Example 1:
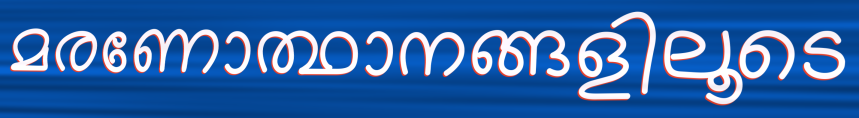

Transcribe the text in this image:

മരണോത്ഥാനങ്ങളിലൂടെ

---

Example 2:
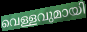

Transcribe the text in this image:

വെള്ളവുമായി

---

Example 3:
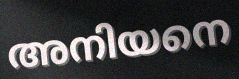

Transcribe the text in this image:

അനിയനെ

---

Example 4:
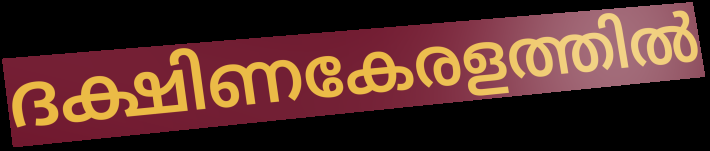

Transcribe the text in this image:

ദക്ഷിണകേരളത്തിൽ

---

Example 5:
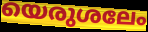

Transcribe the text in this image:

യെരുശലേം